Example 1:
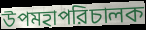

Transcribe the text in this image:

উপমহাপরিচালক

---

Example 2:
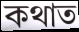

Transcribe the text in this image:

কথাত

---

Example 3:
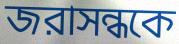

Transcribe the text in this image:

জরাসন্ধকে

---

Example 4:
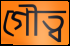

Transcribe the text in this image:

গৌত্ব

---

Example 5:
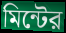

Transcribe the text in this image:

মিন্টের